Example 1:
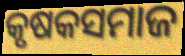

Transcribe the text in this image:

କୃଷକସମାଜ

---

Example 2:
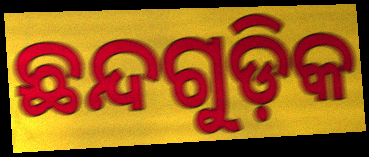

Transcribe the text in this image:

ଛନ୍ଦଗୁଡ଼ିକ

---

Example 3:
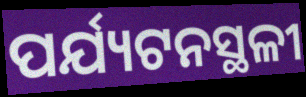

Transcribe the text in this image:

ପର୍ଯ୍ୟଟନସ୍ଥଳୀ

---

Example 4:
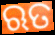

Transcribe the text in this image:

ଋତ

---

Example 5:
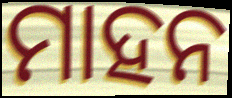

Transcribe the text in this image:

ମାହନ